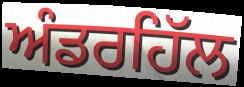
ਅੰਡਰਹਿੱਲ